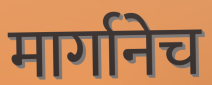
मार्गानेच